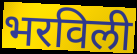
भरविली